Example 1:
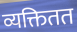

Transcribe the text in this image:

व्यक्तितत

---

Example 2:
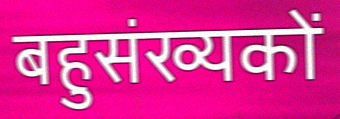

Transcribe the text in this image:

बहुसंख्यकों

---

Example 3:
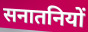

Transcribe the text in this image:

सनातनियों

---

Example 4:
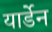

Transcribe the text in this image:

यार्डेन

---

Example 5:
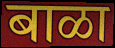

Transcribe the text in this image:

बाळा